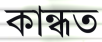
কান্ধত